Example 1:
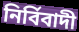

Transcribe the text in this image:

নির্বিবাদী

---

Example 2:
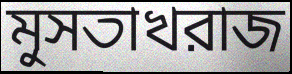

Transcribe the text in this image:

মুসতাখরাজ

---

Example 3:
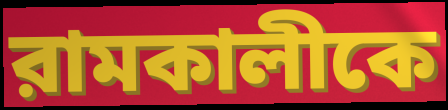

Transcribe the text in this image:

রামকালীকে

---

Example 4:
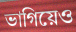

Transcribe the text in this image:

ভাগিয়েও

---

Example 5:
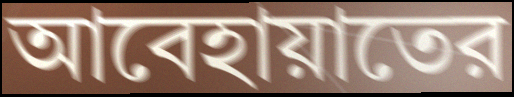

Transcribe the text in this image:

আবেহায়াতের